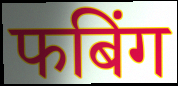
फबिंग